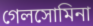
গেলসোমিনা